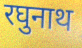
रघुनाथ